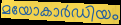
മയോകാർഡിയം